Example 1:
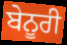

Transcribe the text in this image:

ਬੇਨੂਰੀ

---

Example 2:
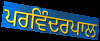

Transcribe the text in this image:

ਪਰਵਿੰਦਰਪਾਲ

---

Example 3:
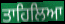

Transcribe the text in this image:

ਤਾਹਿਲਿਆ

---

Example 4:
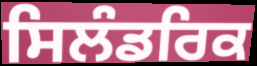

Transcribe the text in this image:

ਸਿਲੰਡਰਿਕ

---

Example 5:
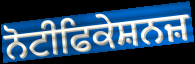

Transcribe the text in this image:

ਨੋਟੀਫਿਕੇਸ਼ਨਜ਼